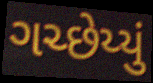
ગચ્છેય્યું